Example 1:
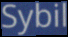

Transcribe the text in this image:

Sybil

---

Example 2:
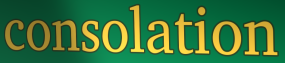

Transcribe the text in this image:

consolation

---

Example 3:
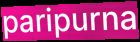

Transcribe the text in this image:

paripurna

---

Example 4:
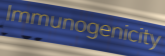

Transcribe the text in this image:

Immunogenicity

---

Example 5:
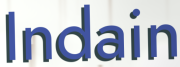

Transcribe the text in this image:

Indain